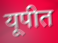
यूपीत